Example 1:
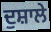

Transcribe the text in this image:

ਦੁਸ਼ਾਲੇ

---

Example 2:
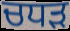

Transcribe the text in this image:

ਚਧੜ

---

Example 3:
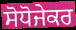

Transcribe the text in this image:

ਸੋਧੋਜੇਕਰ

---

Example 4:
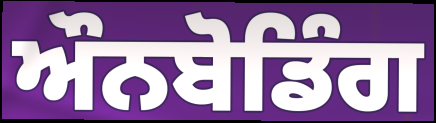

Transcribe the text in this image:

ਔਨਬੋਡਿੰਗ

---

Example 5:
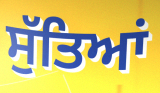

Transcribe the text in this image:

ਸੁੱਤਿਆਂ